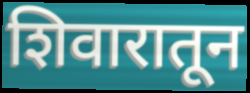
शिवारातून